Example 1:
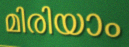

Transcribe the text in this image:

മിരിയാം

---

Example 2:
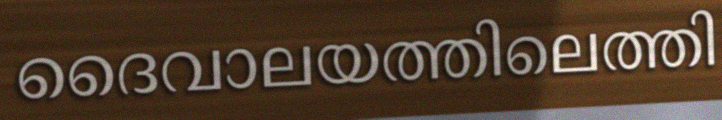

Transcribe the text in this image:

ദൈവാലയത്തിലെത്തി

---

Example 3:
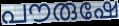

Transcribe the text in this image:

പൗരുഷേ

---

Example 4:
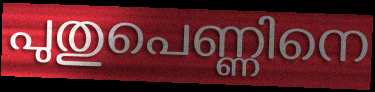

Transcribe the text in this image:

പുതുപെണ്ണിനെ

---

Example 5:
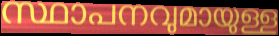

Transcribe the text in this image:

സ്ഥാപനവുമായുള്ള